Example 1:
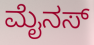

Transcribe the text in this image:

ಮೈನಸ್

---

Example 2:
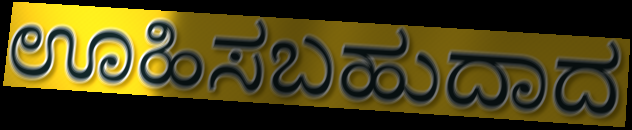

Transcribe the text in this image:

ಊಹಿಸಬಹುದಾದ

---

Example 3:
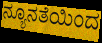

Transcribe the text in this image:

ನ್ಯೂನತೆಯಿಂದ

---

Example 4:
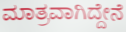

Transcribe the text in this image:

ಮಾತ್ರವಾಗಿದ್ದೇನೆ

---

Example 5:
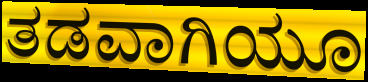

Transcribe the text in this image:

ತಡವಾಗಿಯೂ